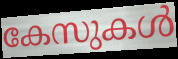
കേസുകൾ